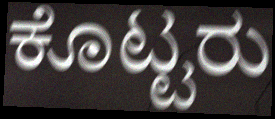
ಕೊಟ್ಟರು